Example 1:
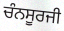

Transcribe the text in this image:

ਚੰਨਸੂਰਜੀ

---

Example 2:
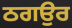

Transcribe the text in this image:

ਠਗਉਰ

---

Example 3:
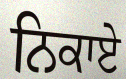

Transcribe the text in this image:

ਨਿਕਾਏ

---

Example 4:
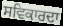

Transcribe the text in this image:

ਸਵਿਕਾਰਦਾ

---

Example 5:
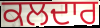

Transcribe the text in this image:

ਕਲਦਾਰ